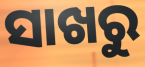
ସାଖରୁ